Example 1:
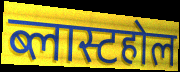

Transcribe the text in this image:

ब्लास्टहोल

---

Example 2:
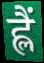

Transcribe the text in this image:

ह्लैं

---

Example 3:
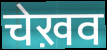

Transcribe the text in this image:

चेख़व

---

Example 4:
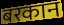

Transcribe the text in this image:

बरकान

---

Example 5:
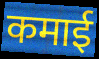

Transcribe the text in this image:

कमाई